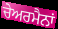
ਚੇਅਰਮੈਨਾਂ